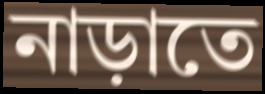
নাড়াতে